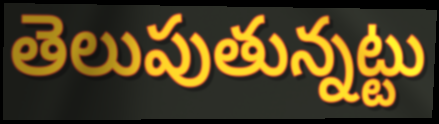
తెలుపుతున్నట్టు